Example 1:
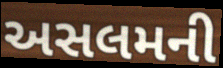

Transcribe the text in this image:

અસલમની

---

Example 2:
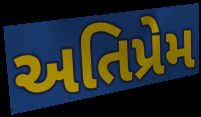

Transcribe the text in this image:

અતિપ્રેમ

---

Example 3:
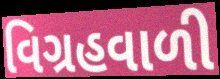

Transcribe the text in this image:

વિગ્રહવાળી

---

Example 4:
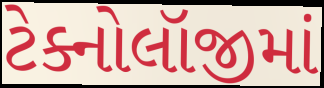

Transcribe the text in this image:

ટેક્નોલૉજીમાં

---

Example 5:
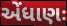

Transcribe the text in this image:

એંધાણઃ